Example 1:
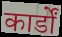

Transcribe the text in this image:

कार्डों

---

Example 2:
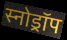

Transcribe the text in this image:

स्नोड्रॉप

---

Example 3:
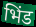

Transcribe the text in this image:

भिंड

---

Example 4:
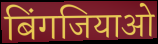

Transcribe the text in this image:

बिंगजियाओ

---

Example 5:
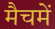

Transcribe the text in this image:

मैचमें